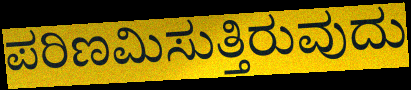
ಪರಿಣಮಿಸುತ್ತಿರುವುದು